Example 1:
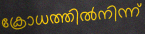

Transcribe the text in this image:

ക്രോധത്തിൽനിന്ന്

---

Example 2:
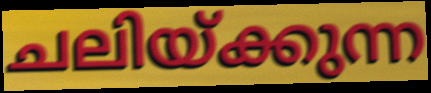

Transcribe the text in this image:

ചലിയ്ക്കുന്ന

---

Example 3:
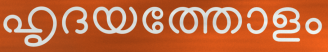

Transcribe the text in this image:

ഹൃദയത്തോളം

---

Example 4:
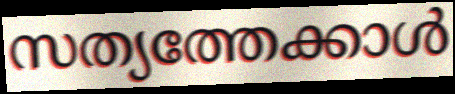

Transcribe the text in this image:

സത്യത്തേക്കാൾ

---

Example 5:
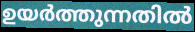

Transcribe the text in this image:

ഉയർത്തുന്നതിൽ